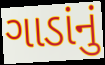
ગાડાંનું